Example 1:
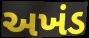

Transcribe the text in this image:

અખંડ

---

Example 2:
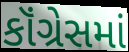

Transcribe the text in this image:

કૉંગ્રેસમાં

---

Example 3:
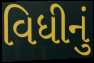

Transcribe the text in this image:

વિધીનું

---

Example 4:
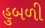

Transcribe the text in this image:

હુબળી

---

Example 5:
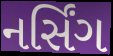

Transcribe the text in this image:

નર્સિંગ